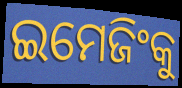
ଇମେଜିଂକୁ